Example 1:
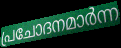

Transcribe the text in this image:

പ്രചോദനമാർന്ന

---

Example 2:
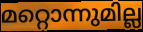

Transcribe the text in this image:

മറ്റൊന്നുമില്ല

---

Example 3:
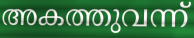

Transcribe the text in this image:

അകത്തുവന്ന്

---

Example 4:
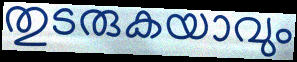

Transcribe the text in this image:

തുടരുകയാവും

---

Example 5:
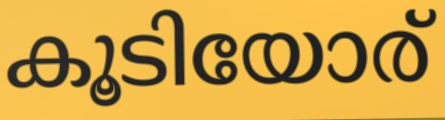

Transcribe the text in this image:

കൂടിയോര്